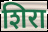
शिरा